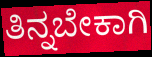
ತಿನ್ನಬೇಕಾಗಿ